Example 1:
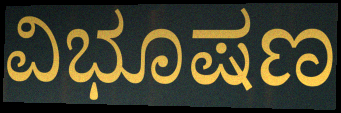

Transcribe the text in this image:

ವಿಭೂಷಣ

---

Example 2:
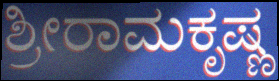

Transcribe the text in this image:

ಶ್ರೀರಾಮಕೃಷ್ಣ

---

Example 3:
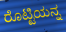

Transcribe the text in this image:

ರೊಟ್ಟಿಯನ್ನ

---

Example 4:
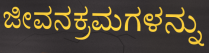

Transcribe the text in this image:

ಜೀವನಕ್ರಮಗಳನ್ನು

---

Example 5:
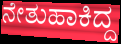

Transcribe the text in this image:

ನೇತುಹಾಕಿದ್ದ